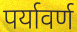
पर्यावर्ण